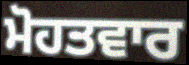
ਮੋਹਤਵਾਰ